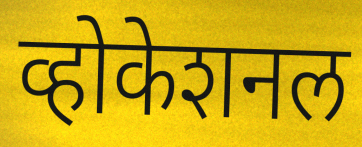
व्होकेशनल